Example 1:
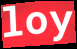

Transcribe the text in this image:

loy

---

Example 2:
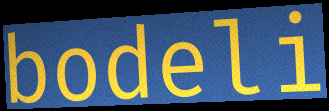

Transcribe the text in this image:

bodeli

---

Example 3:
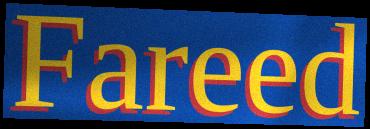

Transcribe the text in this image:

Fareed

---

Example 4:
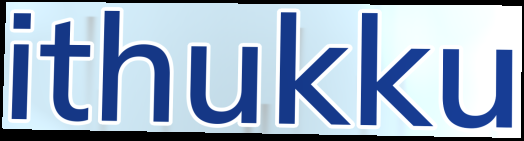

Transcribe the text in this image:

ithukku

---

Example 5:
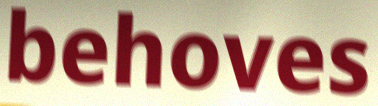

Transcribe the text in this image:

behoves